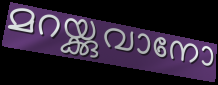
മറയ്ക്കുവാനോ